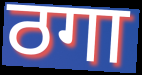
ठगा